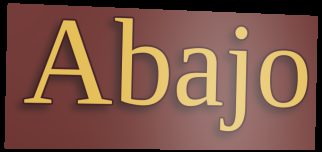
Abajo